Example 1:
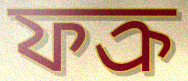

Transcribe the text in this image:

ফক্র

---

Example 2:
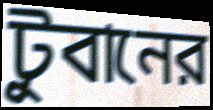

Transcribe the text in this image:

টুবানের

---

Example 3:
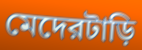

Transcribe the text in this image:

মেদেরটাড়ি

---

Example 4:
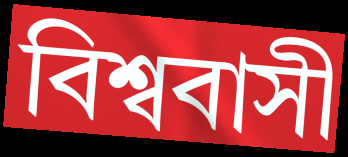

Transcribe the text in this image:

বিশ্ববাসী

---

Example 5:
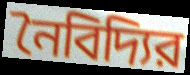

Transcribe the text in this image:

নৈবিদ্যির